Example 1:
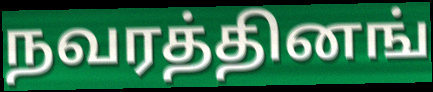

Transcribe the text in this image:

நவரத்தினங்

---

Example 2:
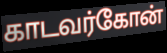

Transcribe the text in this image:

காடவர்கோன்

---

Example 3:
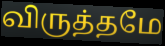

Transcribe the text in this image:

விருத்தமே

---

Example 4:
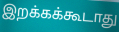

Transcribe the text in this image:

இறக்கக்கூடாது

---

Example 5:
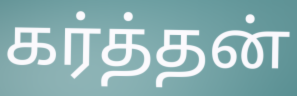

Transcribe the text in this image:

கர்த்தன்